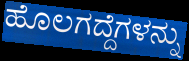
ಹೊಲಗದ್ದೆಗಳನ್ನು